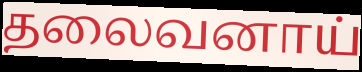
தலைவனாய்